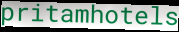
pritamhotels